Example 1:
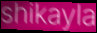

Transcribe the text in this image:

shikayla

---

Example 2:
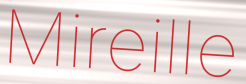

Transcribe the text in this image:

Mireille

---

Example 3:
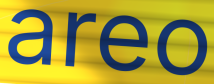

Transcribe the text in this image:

areo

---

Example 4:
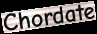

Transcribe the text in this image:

Chordate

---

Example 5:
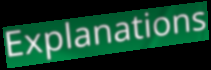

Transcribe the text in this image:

Explanations